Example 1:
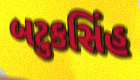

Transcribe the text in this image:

બટુકસિંહ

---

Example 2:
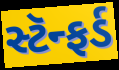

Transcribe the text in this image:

સ્ટૅન્ફર્ડ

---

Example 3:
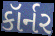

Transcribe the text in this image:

કૉર્નર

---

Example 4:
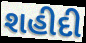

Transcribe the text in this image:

શહીદી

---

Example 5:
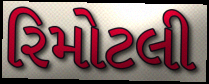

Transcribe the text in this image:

રિમોટલી